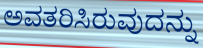
ಅವತರಿಸಿರುವುದನ್ನು